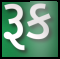
રૂક